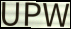
UPW